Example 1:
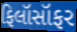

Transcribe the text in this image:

ફિલૉસૉફર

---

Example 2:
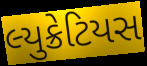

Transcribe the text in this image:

લ્યુક્રેટિયસ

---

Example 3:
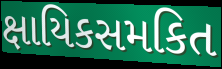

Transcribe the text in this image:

ક્ષાયિકસમકિત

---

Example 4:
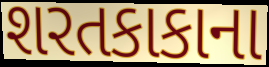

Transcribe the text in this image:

શરતકાકાના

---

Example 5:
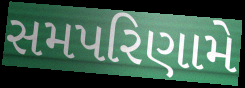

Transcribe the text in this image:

સમપરિણામે